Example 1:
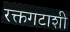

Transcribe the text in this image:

रक्तगटाशी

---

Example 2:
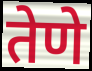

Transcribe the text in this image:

तेणे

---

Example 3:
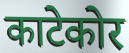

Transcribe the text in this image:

काटेकोर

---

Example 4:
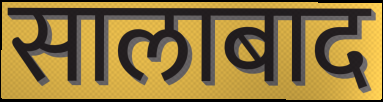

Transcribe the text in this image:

सालाबाद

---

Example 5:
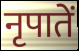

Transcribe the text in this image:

नृपातें